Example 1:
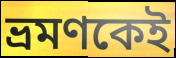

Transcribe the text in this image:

ভ্রমণকেই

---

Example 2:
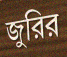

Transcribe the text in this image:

জুরির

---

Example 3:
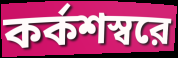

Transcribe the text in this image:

কর্কশস্বরে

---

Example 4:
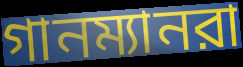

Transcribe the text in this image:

গানম্যানরা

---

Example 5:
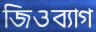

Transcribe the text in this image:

জিওব্যাগ